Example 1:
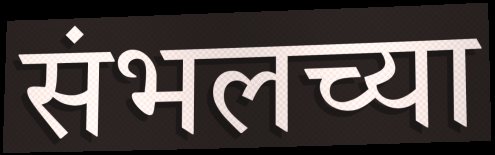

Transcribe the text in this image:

संभलच्या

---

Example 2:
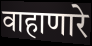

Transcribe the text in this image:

वाहाणारे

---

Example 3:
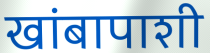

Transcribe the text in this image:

खांबापाशी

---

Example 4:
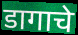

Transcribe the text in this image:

डागाचे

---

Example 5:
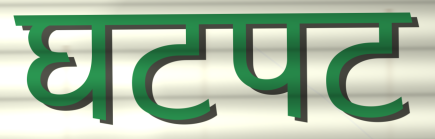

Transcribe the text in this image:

घटपट